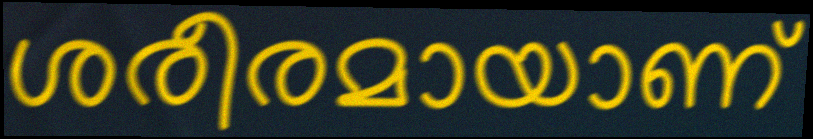
ശരീരമായാണ്